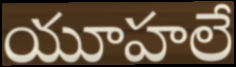
యూహలే